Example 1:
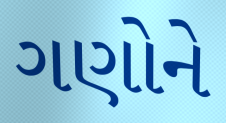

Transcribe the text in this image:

ગણોને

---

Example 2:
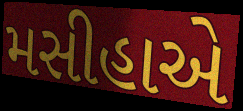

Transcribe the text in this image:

મસીહાએ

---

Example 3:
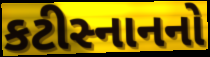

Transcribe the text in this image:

કટીસ્નાનનો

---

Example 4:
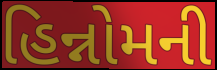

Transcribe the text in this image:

હિન્નોમની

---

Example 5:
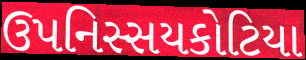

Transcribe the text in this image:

ઉપનિસ્સયકોટિયા